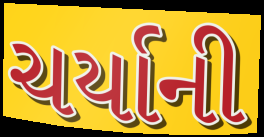
ચર્યાની